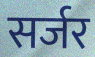
सर्जर